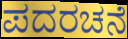
ಪದರಚನೆ